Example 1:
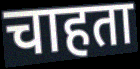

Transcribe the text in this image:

चाहता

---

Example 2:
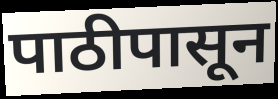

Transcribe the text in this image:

पाठीपासून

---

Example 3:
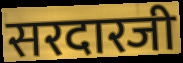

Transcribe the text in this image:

सरदारजी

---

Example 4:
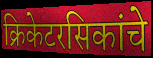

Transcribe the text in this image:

क्रिकेटरसिकांचे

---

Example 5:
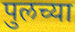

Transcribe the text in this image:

पुलच्या